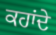
ਕਹਾਂਦੇ